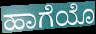
ಹಾಗೆಯೊ